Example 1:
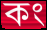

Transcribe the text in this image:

কং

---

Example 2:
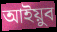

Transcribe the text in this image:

আইয়ুব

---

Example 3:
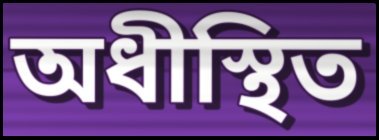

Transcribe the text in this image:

অধীস্থিত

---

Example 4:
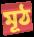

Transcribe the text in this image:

মূঠ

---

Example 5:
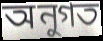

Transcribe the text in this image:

অনুগত